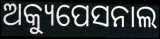
ଅକ୍ୟୁପେସନାଲ